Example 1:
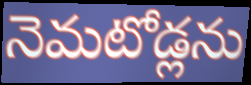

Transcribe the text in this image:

నెమటోడ్లను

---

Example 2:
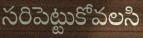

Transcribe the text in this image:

సరిపెట్టుకోవలసి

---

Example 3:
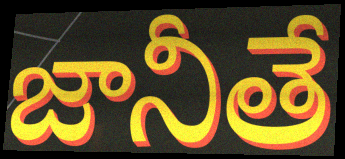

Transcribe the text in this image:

జానీతే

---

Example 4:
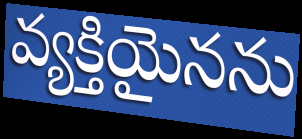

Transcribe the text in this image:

వ్యక్తియైనను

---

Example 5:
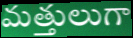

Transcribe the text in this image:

మత్తులుగా